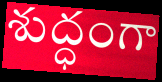
శుద్ధంగా